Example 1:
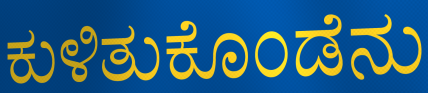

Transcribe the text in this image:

ಕುಳಿತುಕೊಂಡೆನು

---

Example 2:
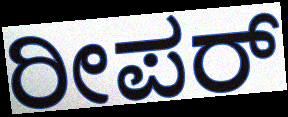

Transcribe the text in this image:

ರೀಪರ್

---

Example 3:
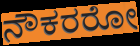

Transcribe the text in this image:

ನೌಕರರೋ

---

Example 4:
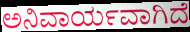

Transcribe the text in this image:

ಅನಿವಾರ್ಯವಾಗಿದೆ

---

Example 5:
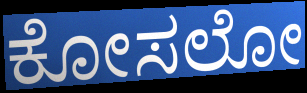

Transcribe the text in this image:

ಕೋಸಲೋ